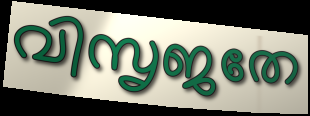
വിസൃജതേ